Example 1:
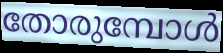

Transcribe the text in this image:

തോരുമ്പോൾ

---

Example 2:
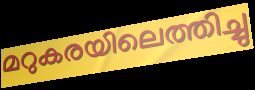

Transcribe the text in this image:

മറുകരയിലെത്തിച്ചു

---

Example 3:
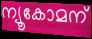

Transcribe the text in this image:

ന്യൂകോമന്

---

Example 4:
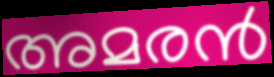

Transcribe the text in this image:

അമരൻ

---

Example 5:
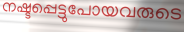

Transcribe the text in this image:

നഷ്ടപ്പെട്ടുപോയവരുടെ